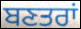
ਬਣਤਰਾਂ